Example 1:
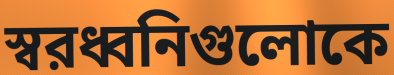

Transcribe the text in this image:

স্বরধ্বনিগুলোকে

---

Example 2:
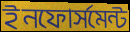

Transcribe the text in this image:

ইনফোর্সমেন্ট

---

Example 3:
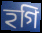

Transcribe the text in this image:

হগি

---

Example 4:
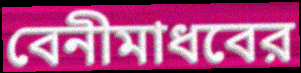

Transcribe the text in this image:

বেনীমাধবের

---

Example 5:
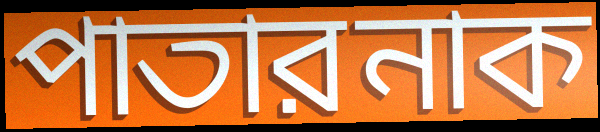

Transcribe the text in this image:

পাতারনাক